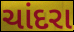
ચાંદરા